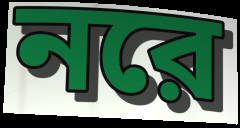
নরে